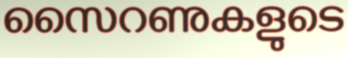
സൈറണുകളുടെ